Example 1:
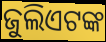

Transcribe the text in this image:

ଜୁଲିଏଟଙ୍କ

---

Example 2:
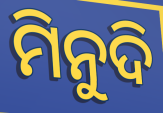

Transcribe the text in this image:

ମିନୁଦି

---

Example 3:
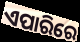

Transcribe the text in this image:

ଏପାରିରେ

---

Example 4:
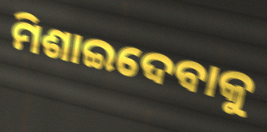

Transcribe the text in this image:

ମିଶାଇଦେବାକୁ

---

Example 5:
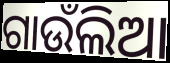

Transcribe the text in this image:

ଗାଉଁଲିଆ